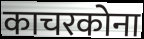
काचरकोना